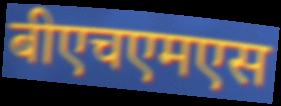
बीएचएमएस